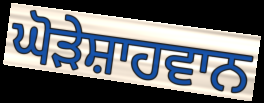
ਘੋੜੇਸ਼ਾਹਵਾਨ